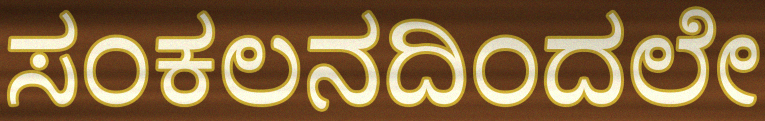
ಸಂಕಲನದಿಂದಲೇ